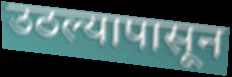
उठल्यापासून